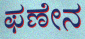
ಫಣೇನ